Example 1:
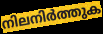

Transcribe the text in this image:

നിലനിർത്തുക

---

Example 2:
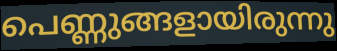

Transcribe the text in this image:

പെണ്ണുങ്ങളായിരുന്നു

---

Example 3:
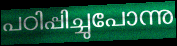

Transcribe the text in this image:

പഠിപ്പിച്ചുപോന്നു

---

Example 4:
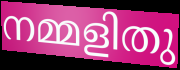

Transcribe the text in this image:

നമ്മളിതു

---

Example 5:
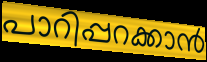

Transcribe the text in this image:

പാറിപ്പറക്കാൻ